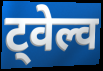
ट्वेल्व